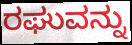
ರಘುವನ್ನು